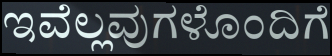
ಇವೆಲ್ಲವುಗಳೊಂದಿಗೆ